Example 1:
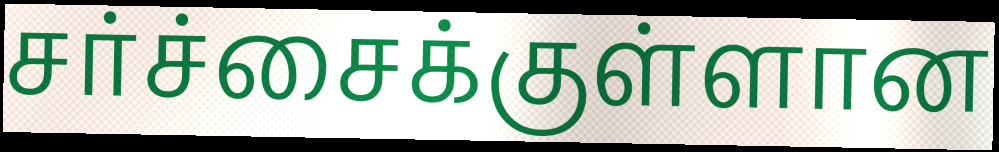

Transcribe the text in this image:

சர்ச்சைக்குள்ளான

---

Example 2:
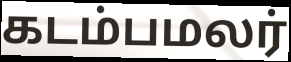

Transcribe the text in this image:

கடம்பமலர்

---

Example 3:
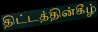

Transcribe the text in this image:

திட்டத்தின்கீழ்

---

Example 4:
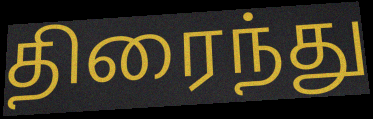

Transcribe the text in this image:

திரைந்து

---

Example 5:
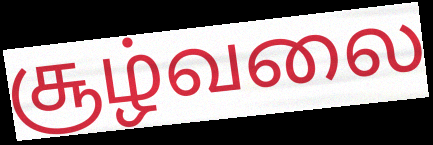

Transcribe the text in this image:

சூழ்வலை